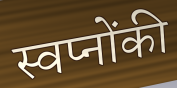
स्वप्नोंकी